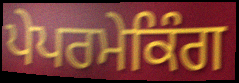
ਪੇਪਰਮੇਕਿੰਗ